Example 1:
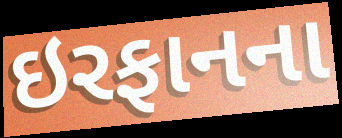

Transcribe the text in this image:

ઇરફાનના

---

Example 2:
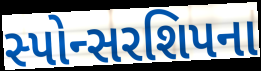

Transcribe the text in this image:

સ્પોન્સરશિપના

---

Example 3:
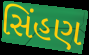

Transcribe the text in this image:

સિંહણ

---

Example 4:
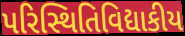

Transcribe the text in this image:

પરિસ્થિતિવિદ્યાકીય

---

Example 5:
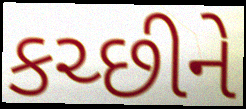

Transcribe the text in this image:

કચ્છીને